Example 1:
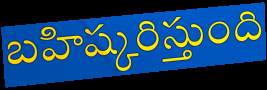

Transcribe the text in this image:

బహిష్కరిస్తుంది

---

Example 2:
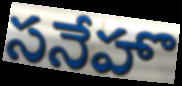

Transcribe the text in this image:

సనేహొ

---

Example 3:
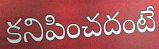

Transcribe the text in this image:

కనిపించదంటే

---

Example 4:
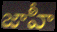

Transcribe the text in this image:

జాహీ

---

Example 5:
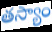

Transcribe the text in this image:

తస్యాం